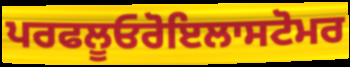
ਪਰਫਲੂਓਰੋਇਲਾਸਟੋਮਰ